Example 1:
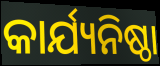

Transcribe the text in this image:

କାର୍ଯ୍ୟନିଷ୍ଠା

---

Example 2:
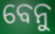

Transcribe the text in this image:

ବେନୁ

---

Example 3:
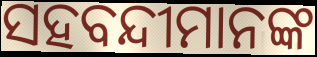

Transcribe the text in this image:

ସହବନ୍ଦୀମାନଙ୍କ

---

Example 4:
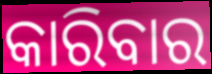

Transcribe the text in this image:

କାରିବାର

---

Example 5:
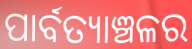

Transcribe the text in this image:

ପାର୍ବତ୍ୟାଞ୍ଚଳର